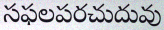
సఫలపరచుదువు